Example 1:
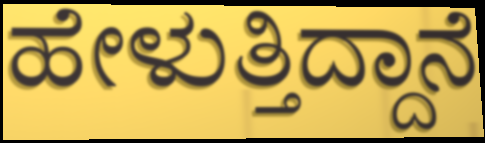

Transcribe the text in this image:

ಹೇಳುತ್ತಿದ್ದಾನೆ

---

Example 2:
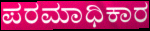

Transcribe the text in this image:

ಪರಮಾಧಿಕಾರ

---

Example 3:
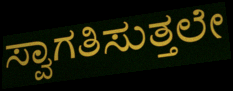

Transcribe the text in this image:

ಸ್ವಾಗತಿಸುತ್ತಲೇ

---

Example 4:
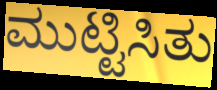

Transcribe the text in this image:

ಮುಟ್ಟಿಸಿತು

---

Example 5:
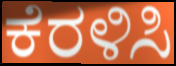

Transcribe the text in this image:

ಕೆರಳಿಸಿ